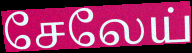
சேலேய்